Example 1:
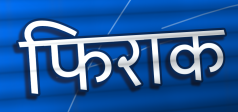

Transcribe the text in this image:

फिराक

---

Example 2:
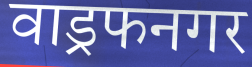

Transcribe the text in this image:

वाड्रफनगर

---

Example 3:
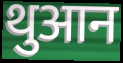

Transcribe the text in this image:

थुआन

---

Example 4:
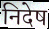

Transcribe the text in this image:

निदेष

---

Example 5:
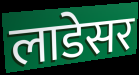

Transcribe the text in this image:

लाडेसर